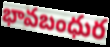
భావబంధుర